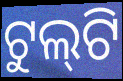
ଟୁଲ୍‌ଟି